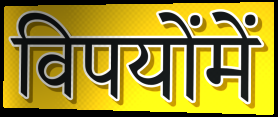
विपयोंमें